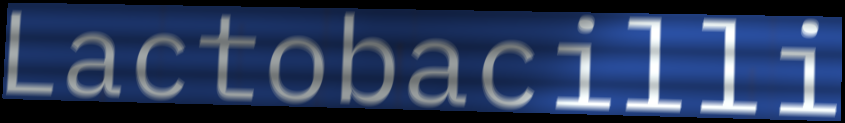
Lactobacilli